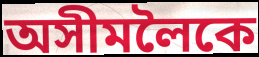
অসীমলৈকে